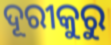
ଦୂରୀକୁରୁ